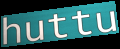
huttu